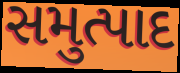
સમુત્પાદ